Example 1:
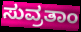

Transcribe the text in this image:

ಸುವ್ರತಾಂ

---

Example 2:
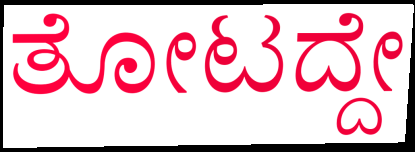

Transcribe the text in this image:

ತೋಟದ್ದೇ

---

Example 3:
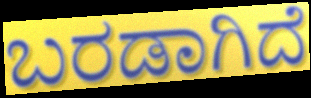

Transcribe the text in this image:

ಬರಡಾಗಿದೆ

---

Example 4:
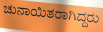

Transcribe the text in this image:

ಚುನಾಯಿತರಾಗಿದ್ದರು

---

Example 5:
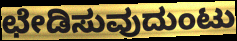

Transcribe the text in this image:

ಛೇಡಿಸುವುದುಂಟು